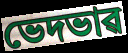
ভেদভাৱ